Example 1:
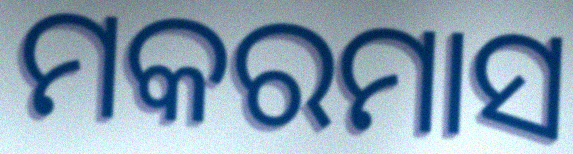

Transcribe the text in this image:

ମକରମାସ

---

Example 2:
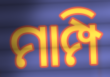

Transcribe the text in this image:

ମାମ୍ପି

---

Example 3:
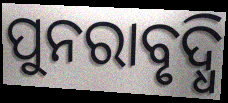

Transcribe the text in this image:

ପୁନରାବୃଦ୍ଧି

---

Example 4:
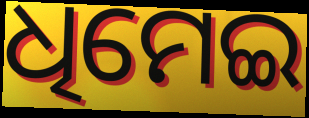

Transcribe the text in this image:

ଧିମେଇ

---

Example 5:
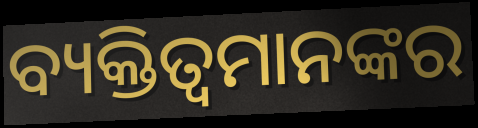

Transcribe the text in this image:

ବ୍ୟକ୍ତିତ୍ୱମାନଙ୍କର